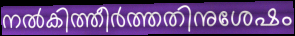
നൽകിത്തീർത്തതിനുശേഷം